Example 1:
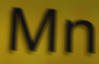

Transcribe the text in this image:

Mn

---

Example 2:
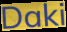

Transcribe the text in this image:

Daki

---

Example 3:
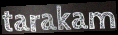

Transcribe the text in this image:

tarakam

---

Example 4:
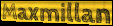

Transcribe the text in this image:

Maxmillan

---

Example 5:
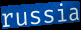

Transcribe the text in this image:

russia